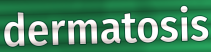
dermatosis